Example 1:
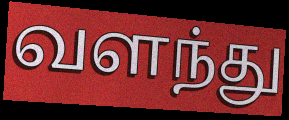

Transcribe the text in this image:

வளந்து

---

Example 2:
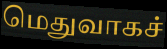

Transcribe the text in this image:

மெதுவாகச்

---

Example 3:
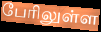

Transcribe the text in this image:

பேரிலுள்ள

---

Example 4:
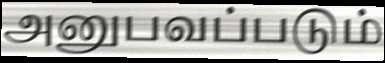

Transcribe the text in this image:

அனுபவப்படும்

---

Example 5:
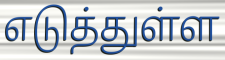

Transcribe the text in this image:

எடுத்துள்ள